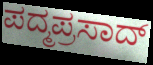
ಪದ್ಮಪ್ರಸಾದ್